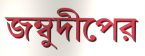
জম্বুদীপের